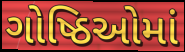
ગોષ્ઠિઓમાં